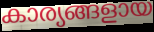
കാര്യങ്ങളായ